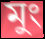
মুং